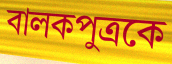
বালকপুত্রকে